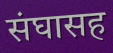
संघासह